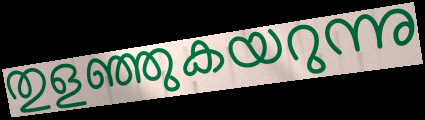
തുളഞ്ഞുകയറുന്നു